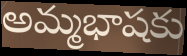
అమ్మభాషకు